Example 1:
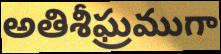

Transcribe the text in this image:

అతిశీఘ్రముగా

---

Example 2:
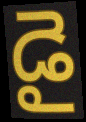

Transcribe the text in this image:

డై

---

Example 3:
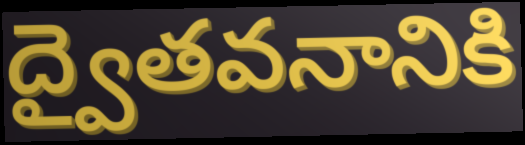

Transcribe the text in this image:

ద్వైతవనానికి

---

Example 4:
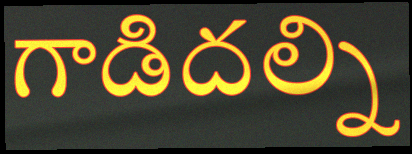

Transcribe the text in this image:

గాడిదల్ని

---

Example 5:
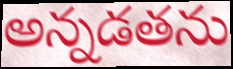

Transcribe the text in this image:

అన్నడతను